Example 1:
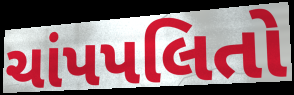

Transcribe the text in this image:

ચાંપપલિતો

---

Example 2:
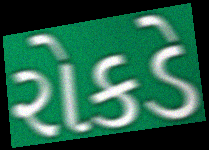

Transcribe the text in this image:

રોકડે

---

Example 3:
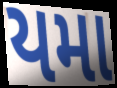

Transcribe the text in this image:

યમા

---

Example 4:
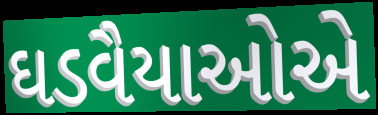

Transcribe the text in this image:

ઘડવૈયાઓએ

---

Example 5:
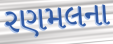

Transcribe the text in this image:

રણમલના